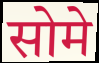
सोमे